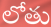
లోతు